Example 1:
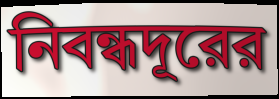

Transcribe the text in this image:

নিবন্ধদূরের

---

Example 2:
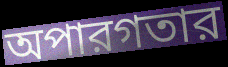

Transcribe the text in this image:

অপারগতার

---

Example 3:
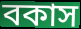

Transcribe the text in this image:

বকাস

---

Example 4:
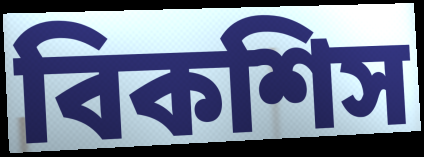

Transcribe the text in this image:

বিকশিস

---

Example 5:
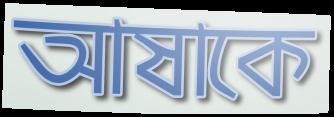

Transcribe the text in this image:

আষাকে